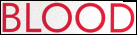
BLOOD